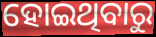
ହୋଇଥିବାରୁ